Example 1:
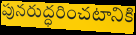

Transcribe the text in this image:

పునరుద్ధరించటానికి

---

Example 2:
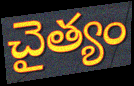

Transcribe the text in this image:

చైత్యం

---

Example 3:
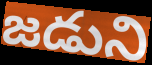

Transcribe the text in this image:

జడుని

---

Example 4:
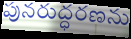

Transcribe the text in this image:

పునరుద్ధరణను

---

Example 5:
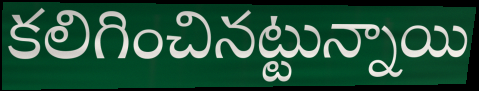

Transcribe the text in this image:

కలిగించినట్టున్నాయి